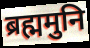
ब्रह्ममुनि